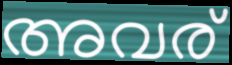
അവര്